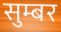
सुम्बर